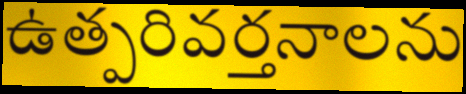
ఉత్పరివర్తనాలను